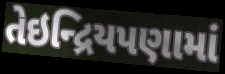
તેઇન્દ્રિયપણામાં